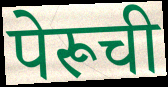
पेरूची